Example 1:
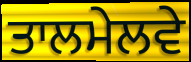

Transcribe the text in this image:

ਤਾਲਮੇਲਵੇ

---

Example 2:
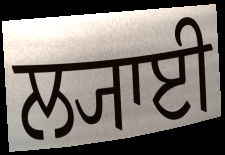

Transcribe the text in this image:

ਲ੍ਯਾਈ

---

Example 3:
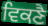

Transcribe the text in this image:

ਵਿਕਣੈ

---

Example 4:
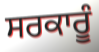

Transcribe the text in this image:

ਸਰਕਾਰੂੰ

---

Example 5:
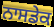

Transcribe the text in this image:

ਨਾਸਡੇਕ